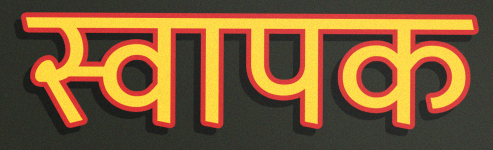
स्‍वापक